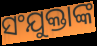
ସଂଯୁକ୍ତାଙ୍କ